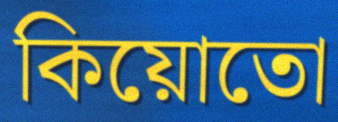
কিয়োতো